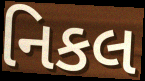
નિકલ